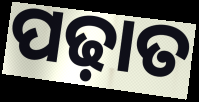
ପଢ଼ାତ